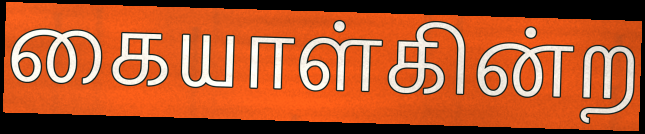
கையாள்கின்ற